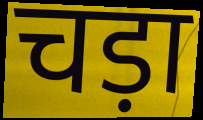
चड़ा